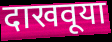
दाखवूया